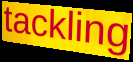
tackling